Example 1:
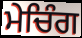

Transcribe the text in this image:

ਮੇਚਿੰਗ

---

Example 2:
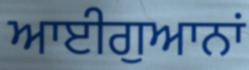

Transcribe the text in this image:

ਆਈਗੁਆਨਾਂ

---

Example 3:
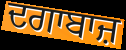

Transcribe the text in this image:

ਦਗਾਬਾਜ਼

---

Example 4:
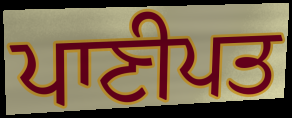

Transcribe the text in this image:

ਪਾਣੀਪਤ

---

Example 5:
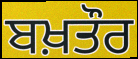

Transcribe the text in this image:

ਬਖ਼ਤੌਰ